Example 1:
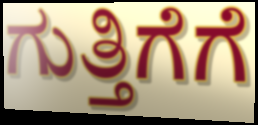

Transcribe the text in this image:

ಗುತ್ತಿಗೆಗೆ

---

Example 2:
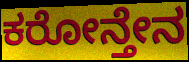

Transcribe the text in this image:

ಕರೋನ್ತೇನ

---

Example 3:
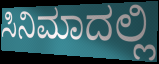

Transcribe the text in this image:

ಸಿನಿಮಾದಲ್ಲಿ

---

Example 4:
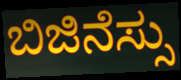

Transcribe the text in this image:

ಬಿಜಿನೆಸ್ಸು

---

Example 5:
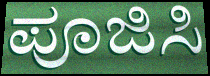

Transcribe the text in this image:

ಪೂಜಿಸಿ